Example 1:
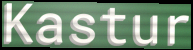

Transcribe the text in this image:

Kastur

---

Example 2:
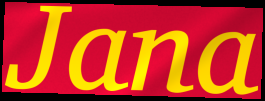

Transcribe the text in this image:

Jana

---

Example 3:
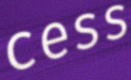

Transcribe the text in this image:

cess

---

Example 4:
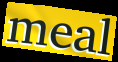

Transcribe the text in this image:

meal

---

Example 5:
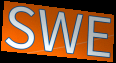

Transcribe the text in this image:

SWE